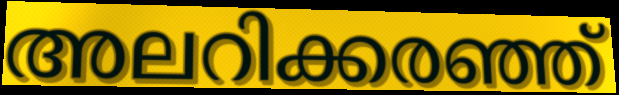
അലറിക്കരഞ്ഞ്